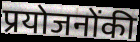
प्रयोजनोंकी